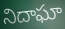
నిదాఘా